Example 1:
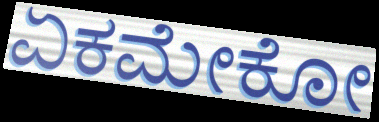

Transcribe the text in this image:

ಏಕಮೇಕೋ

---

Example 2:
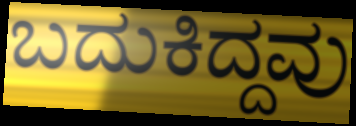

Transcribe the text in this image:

ಬದುಕಿದ್ದವು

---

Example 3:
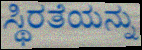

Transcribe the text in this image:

ಸ್ಥಿರತೆಯನ್ನು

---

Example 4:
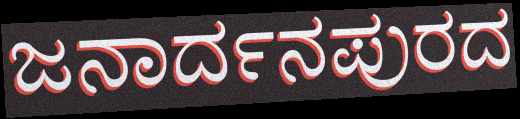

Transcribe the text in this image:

ಜನಾರ್ದನಪುರದ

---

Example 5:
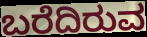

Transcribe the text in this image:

ಬರೆದಿರುವ